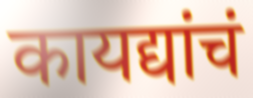
कायद्यांचं